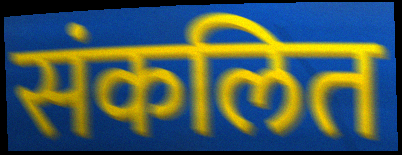
संकलित